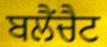
ਬਲੈਂਚੈਟ